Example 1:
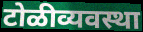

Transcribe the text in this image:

टोळीव्यवस्था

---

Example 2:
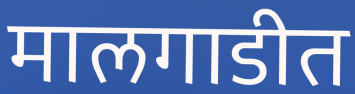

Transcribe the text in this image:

मालगाडीत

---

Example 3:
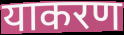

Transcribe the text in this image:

याकरण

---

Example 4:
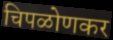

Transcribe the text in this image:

चिपळोणकर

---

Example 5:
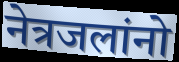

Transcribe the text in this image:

नेत्रजलांनो